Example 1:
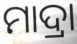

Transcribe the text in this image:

ମାଦ୍ରା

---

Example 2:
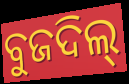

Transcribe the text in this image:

ବୁଜଦିଲ୍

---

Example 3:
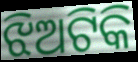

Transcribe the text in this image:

ଝିଅଟିକି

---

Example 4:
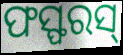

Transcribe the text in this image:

ଫସ୍ଫରସ୍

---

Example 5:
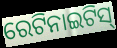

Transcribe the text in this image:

ରେଟିନାଇଟିସ୍